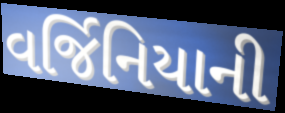
વર્જિનિયાની